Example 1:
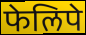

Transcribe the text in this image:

फेलिपे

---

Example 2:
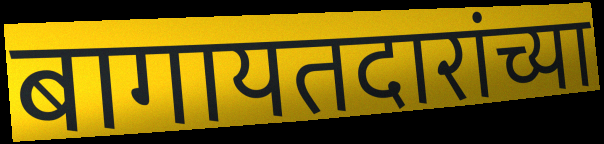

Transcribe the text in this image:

बागायतदारांच्या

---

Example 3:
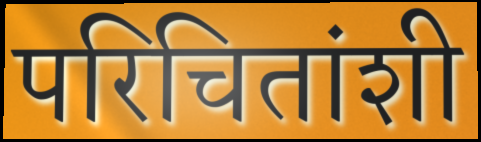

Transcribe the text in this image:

परिचितांशी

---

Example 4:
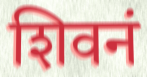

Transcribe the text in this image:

शिवनं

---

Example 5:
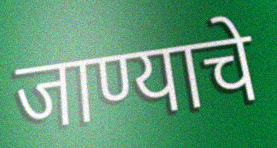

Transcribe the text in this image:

जाण्याचे